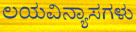
ಲಯವಿನ್ಯಾಸಗಳು